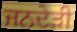
ਜਨਦੇੜੀ